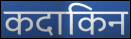
कदाकिन